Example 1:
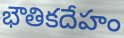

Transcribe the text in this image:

భౌతికదేహం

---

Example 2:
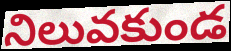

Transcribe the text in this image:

నిలువకుండ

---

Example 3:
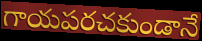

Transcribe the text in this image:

గాయపరచకుండానే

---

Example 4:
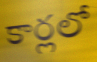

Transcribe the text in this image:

కార్లలో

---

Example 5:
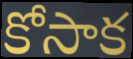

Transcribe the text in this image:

కోసాక